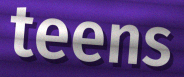
teens